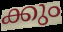
ക്കും